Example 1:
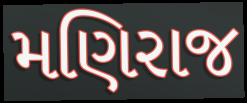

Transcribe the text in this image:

મણિરાજ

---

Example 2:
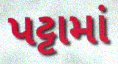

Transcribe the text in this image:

પટ્ટામાં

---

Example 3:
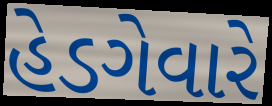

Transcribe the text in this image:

હેડગેવારે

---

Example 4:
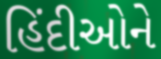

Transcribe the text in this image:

હિંદીઓને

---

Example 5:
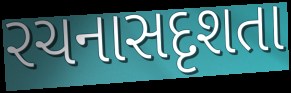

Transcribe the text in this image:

રચનાસદૃશતા